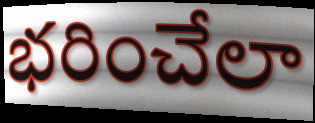
భరించేలా